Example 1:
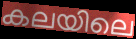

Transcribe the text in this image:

കലയിലെ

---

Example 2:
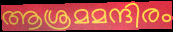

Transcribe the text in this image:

ആശ്രമമന്ദിരം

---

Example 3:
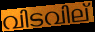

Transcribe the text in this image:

വിടവില്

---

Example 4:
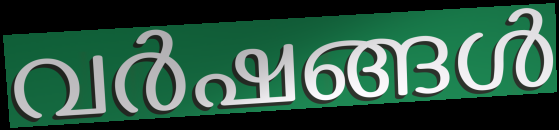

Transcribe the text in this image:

വർഷങ്ങൾ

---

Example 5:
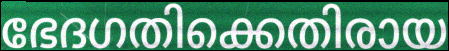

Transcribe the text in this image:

ഭേദഗതിക്കെതിരായ